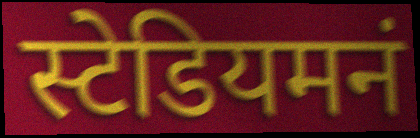
स्टेडियमनं